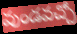
వుండవచ్చో